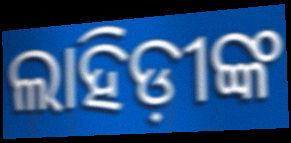
ଲାହିଡ଼ୀଙ୍କ